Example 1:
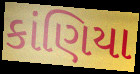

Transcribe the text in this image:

કાંણિયા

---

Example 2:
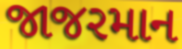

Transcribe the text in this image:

જાજરમાન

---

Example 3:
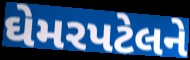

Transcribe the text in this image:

ઘેમરપટેલને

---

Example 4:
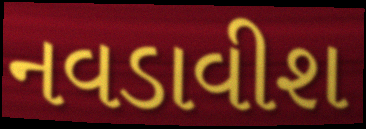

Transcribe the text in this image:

નવડાવીશ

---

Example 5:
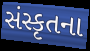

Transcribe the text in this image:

સંસ્કૃતના